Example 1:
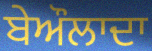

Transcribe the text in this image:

ਬੇਔਲਾਦਾ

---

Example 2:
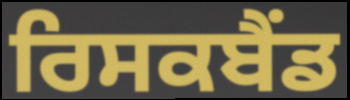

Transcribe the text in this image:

ਰਿਸਕਬੈਂਡ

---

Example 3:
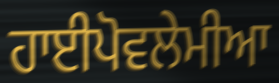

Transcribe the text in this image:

ਹਾਈਪੋਵਲੇਮੀਆ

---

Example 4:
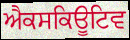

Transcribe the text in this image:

ਐਕਸਕਿਊਟਿਵ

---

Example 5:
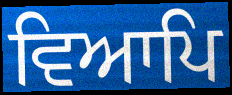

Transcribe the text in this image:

ਵਿਆਪਿ